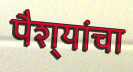
पैश्यांचा